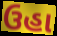
ઉહા